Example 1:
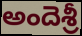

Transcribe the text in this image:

అందెశ్రీ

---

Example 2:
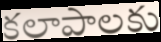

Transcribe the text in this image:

కలాపాలకు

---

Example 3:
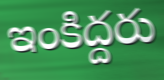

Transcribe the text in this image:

ఇంకిద్దరు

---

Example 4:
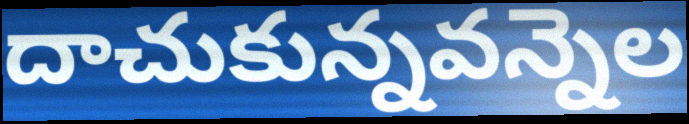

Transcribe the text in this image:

దాచుకున్నవన్నెల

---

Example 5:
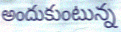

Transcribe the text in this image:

అందుకుంటున్న